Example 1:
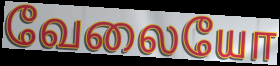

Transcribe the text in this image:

வேலையோ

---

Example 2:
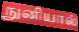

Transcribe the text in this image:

நுனியால்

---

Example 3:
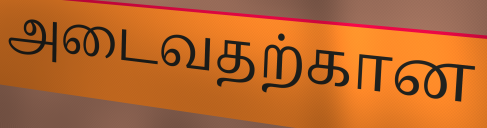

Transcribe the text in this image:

அடைவதற்கான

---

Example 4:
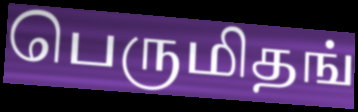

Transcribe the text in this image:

பெருமிதங்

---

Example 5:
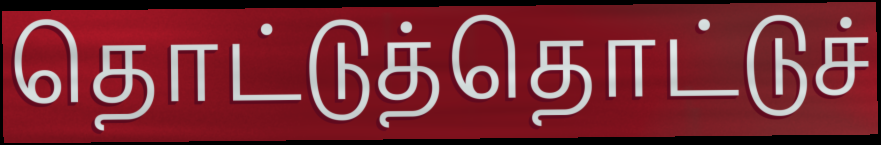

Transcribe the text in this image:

தொட்டுத்தொட்டுச்